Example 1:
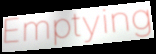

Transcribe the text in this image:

Emptying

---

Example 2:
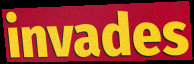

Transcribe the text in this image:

invades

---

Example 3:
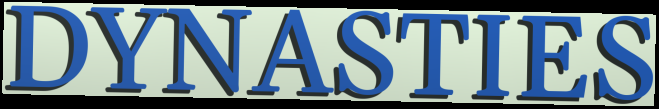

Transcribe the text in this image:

DYNASTIES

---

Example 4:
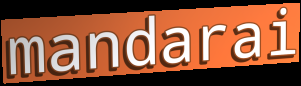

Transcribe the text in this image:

mandarai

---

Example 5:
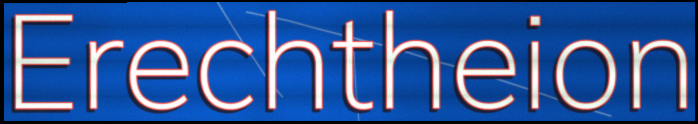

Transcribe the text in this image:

Erechtheion